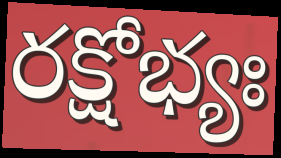
రక్షోభ్యః